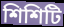
শিশিটি